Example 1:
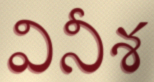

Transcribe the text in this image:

వినీశ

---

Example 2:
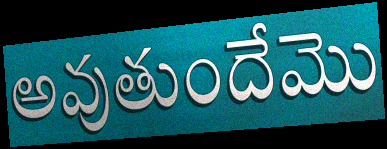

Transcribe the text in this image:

అవుతుందేమొ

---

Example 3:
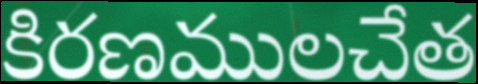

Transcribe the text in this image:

కిరణములచేత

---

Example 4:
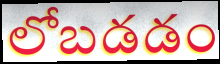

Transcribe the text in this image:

లోబడడం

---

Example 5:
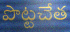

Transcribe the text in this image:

పొట్టచేత